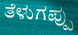
ತೆಳುಗಪ್ಪು